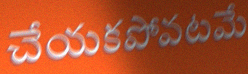
చేయకపోవటమే